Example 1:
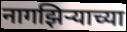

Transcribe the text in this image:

नागझिऱ्याच्या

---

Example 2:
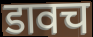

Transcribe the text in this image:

डावच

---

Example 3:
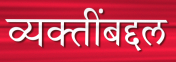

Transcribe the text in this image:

व्यक्तींबद्दल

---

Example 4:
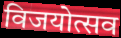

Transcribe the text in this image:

विजयोत्सव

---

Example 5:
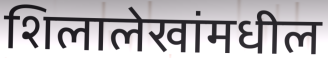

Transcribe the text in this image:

शिलालेखांमधील